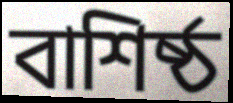
বাশিষ্ঠ